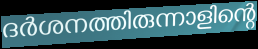
ദർശനത്തിരുന്നാളിന്റെ